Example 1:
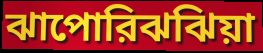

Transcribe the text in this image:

ঝাপোরিঝঝিয়া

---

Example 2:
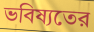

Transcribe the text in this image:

ভবিষ্যতের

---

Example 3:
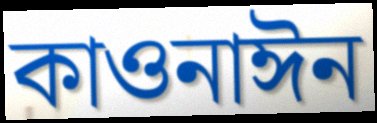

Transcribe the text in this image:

কাওনাঈন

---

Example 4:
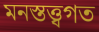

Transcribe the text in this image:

মনস্তত্ত্বগত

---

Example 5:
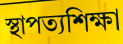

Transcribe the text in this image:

স্থাপত্যশিক্ষা